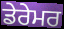
ਡੇਰੇਮਰ